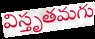
విస్తృతమగు